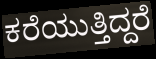
ಕರೆಯುತ್ತಿದ್ದರೆ